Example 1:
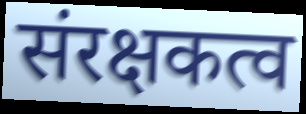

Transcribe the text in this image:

संरक्षकत्व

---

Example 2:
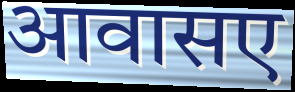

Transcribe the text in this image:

आवासए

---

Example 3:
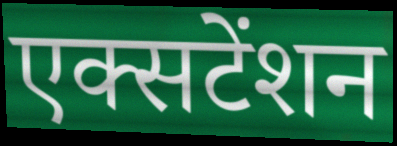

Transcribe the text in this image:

एक्सटेंशन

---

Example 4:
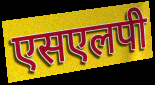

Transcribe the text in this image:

एसएलपी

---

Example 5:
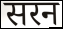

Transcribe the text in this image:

सरन